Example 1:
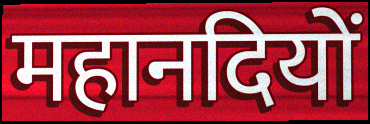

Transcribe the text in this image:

महानदियों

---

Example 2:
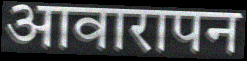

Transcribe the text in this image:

आवारापन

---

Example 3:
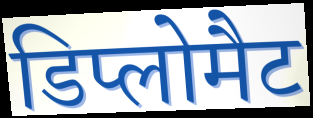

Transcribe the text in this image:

डिप्लोमैट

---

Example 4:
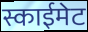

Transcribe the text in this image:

स्काईमेट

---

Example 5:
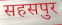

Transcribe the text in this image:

सहसपुर